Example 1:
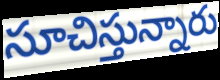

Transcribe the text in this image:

సూచిస్తున్నారు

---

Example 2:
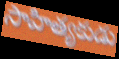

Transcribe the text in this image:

సాహిత్యకుడు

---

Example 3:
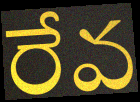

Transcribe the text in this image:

రేవ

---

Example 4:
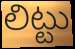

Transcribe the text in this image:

లిట్టు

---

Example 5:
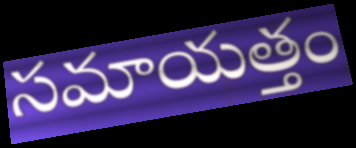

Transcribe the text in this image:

సమాయత్తం